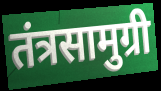
तंत्रसामुग्री